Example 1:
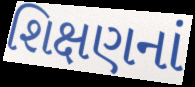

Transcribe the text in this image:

શિક્ષણનાં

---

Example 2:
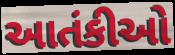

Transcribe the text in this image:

આતંકીઓ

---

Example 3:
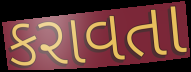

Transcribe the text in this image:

કરાવતા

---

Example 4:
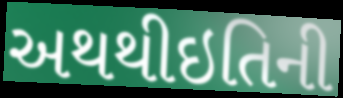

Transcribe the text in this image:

અથથીઇતિની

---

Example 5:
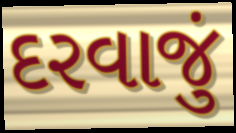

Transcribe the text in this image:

દરવાજું